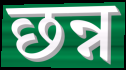
छन्न